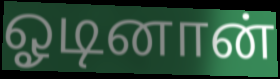
ஓடினான்